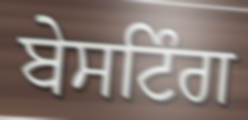
ਬੇਸਟਿੰਗ